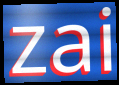
zai